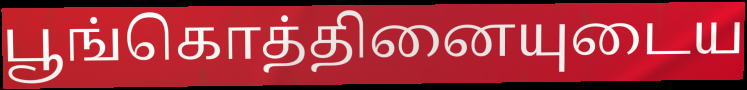
பூங்கொத்தினையுடைய